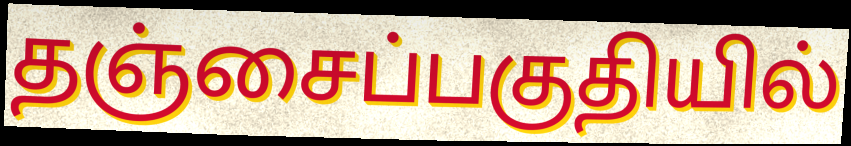
தஞ்சைப்பகுதியில்